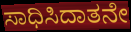
ಸಾಧಿಸಿದಾತನೇ